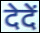
देदें